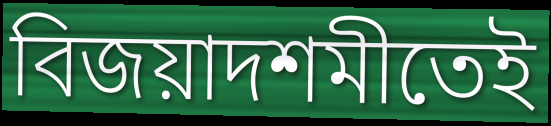
বিজয়াদশমীতেই